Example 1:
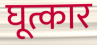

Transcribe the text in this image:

घूत्कार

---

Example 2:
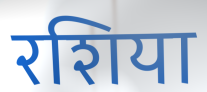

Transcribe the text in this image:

रशिया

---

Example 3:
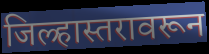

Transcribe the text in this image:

जिल्हास्तरावरून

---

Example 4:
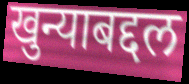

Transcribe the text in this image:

खुन्याबद्दल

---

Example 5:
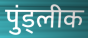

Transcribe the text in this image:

पुंड्लीक